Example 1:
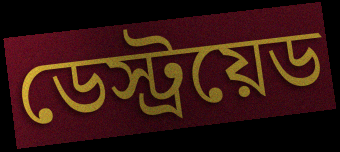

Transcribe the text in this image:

ডেস্ট্রয়েড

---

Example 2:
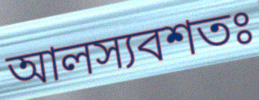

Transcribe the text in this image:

আলস্যবশতঃ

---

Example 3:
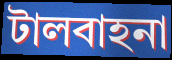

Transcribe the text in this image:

টালবাহনা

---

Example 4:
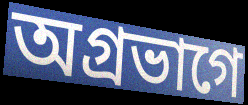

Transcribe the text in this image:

অগ্রভাগে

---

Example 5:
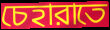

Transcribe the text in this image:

চেহারাতে